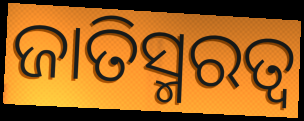
ଜାତିସ୍ମରତ୍ୱ